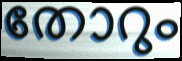
തോറും